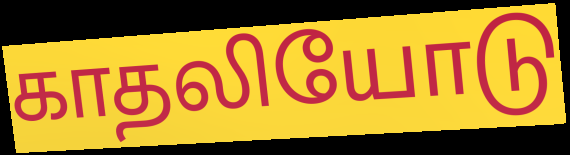
காதலியோடு